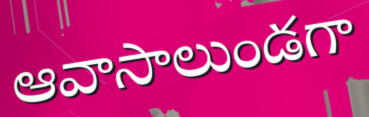
ఆవాసాలుండగా